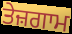
ਤੇਜ਼ਗਾਮ